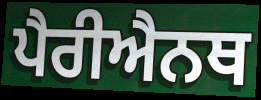
ਪੈਰੀਐਨਥ